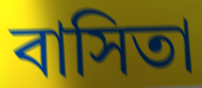
বাসিতা